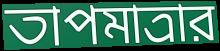
তাপমাত্রার